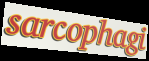
sarcophagi